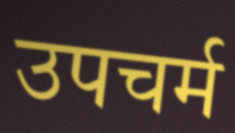
उपचर्म